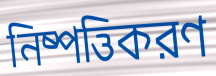
নিষ্পত্তিকরণ